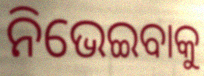
ନିଭେଇବାକୁ